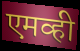
एमव्ही